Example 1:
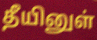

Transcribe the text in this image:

தீயினுள்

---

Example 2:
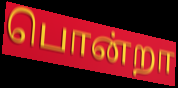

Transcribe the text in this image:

பொன்றா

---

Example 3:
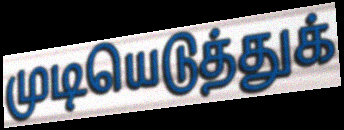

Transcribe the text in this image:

முடியெடுத்துக்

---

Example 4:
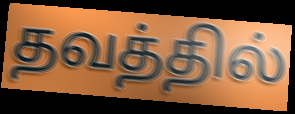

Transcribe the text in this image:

தவத்தில்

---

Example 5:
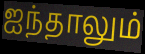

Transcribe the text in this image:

ஐந்தாலும்